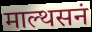
माल्थसनं